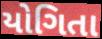
યોગિતા